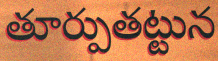
తూర్పుతట్టున